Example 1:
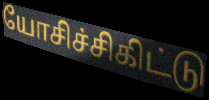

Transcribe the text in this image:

யோசிச்சிகிட்டு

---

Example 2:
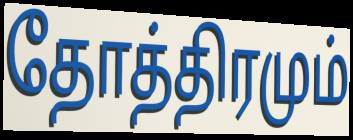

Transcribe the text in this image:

தோத்திரமும்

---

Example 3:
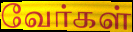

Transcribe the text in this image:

வேர்கள்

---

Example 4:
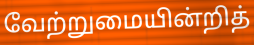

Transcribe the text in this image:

வேற்றுமையின்றித்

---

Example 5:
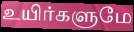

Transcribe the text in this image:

உயிர்களுமே